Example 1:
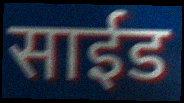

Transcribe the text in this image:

साईड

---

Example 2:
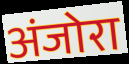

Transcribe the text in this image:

अंजोरा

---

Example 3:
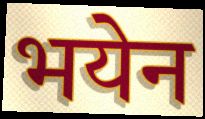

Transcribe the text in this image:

भयेन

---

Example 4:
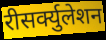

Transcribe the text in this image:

रीसर्क्युलेशन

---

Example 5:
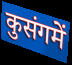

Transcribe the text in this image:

कुसंगमें